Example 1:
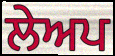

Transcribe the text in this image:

ਲੇਅਪ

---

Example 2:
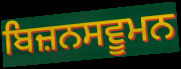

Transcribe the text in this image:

ਬਿਜ਼ਨਸਵੂਮਨ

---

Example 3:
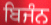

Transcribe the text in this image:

ਬਿਜੰਨ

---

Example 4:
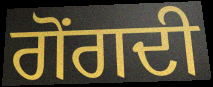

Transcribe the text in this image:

ਗੋਂਗਦੀ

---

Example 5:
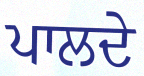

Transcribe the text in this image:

ਪਾਲਦੇ